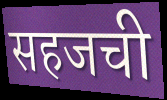
सहजची